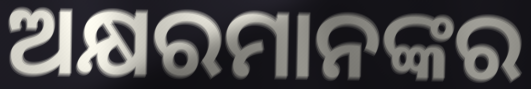
ଅକ୍ଷରମାନଙ୍କର